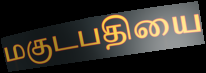
மகுடபதியை